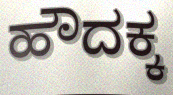
ಹೌದಕ್ಕ